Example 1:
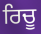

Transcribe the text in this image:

ਰਿਚੂ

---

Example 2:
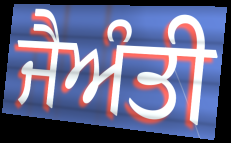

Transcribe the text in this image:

ਜੈਅੰਤੀ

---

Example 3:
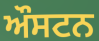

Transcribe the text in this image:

ਔਸਟਨ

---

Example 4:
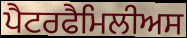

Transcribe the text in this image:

ਪੈਟਰਫੈਮਿਲੀਅਸ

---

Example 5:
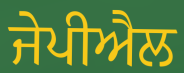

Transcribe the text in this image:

ਜੇਪੀਐਲ